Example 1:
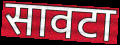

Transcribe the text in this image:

सावटा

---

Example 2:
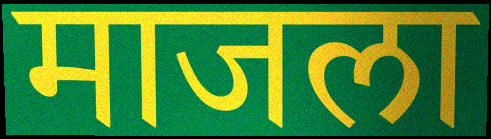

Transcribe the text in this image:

माजला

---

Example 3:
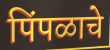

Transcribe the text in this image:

पिंपळाचे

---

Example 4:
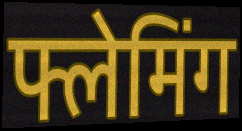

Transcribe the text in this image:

फ्लेमिंग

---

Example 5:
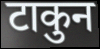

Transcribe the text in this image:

टाकुन